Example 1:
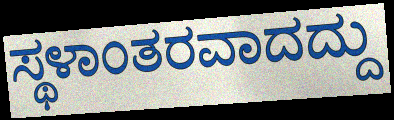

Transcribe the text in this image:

ಸ್ಥಳಾಂತರವಾದದ್ದು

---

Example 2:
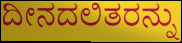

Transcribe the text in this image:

ದೀನದಲಿತರನ್ನು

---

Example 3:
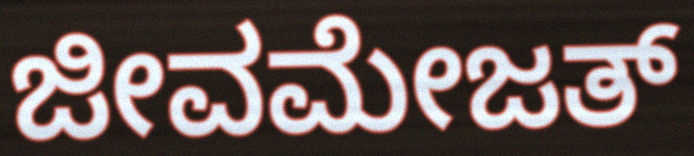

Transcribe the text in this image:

ಜೀವಮೇಜತ್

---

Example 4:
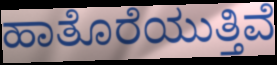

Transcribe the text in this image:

ಹಾತೊರೆಯುತ್ತಿವೆ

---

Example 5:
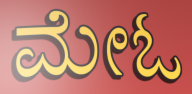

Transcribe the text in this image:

ಮೇಓ